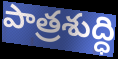
పాత్రశుద్ధి